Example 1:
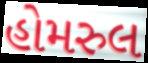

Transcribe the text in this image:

હોમરુલ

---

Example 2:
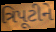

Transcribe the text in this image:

ત્રિપૂટીને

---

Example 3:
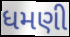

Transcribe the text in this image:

ધમણી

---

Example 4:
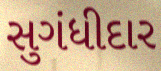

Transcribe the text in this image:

સુગંધીદાર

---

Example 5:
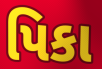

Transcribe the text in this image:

પિકા